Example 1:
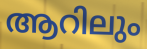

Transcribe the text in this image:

ആറിലും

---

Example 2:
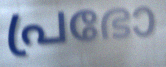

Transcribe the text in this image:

പ്രഭോ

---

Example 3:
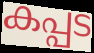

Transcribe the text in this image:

കപ്പട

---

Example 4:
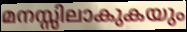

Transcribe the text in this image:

മനസ്സിലാകുകയും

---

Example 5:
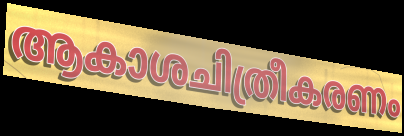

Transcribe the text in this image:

ആകാശചിത്രീകരണം